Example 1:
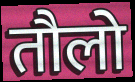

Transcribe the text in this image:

तौलो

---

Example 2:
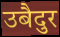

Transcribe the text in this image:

उबैदुर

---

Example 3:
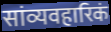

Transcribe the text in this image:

सांव्यवहारिकं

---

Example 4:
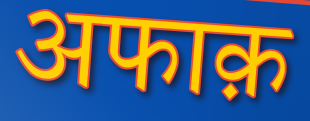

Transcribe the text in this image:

अफाक़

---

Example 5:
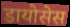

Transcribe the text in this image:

डायोसेस